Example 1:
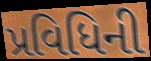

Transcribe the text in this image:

પ્રવિધિની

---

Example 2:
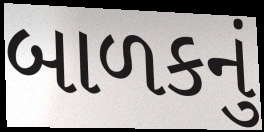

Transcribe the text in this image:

બાળકનું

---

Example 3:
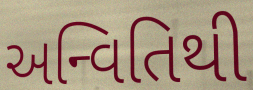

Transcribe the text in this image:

અન્વિતિથી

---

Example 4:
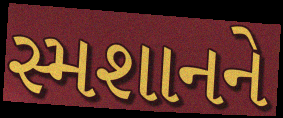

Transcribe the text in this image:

સ્મશાનને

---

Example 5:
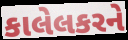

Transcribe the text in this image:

કાલેલકરને